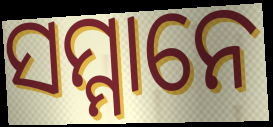
ସମ୍ମାନେ